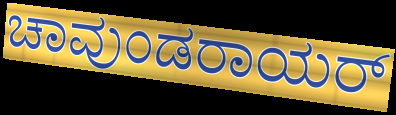
ಚಾವುಂಡರಾಯರ್